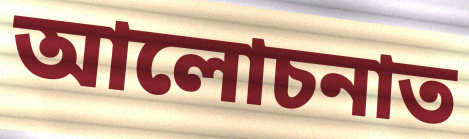
আলোচনাত